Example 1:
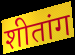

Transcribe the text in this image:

शीतांग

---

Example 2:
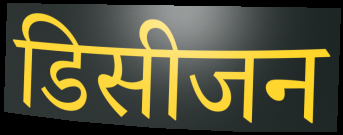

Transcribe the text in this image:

डिसीजन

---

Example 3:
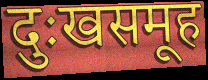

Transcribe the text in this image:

दुःखसमूह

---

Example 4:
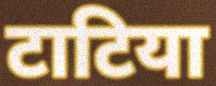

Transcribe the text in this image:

टाटिया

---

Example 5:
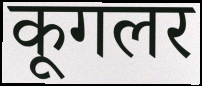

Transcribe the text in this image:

कूगलर